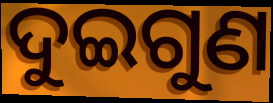
ଦୁଇଗୁଣ